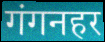
गंगनहर